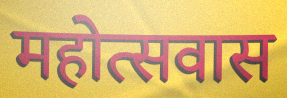
महोत्सवास